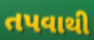
તપવાથી